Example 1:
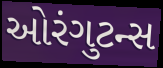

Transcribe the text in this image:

ઓરંગુટન્સ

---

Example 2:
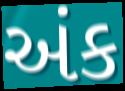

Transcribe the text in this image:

અંક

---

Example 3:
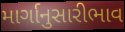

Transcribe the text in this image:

માર્ગાનુસારીભાવ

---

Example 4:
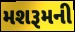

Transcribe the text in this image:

મશરૂમની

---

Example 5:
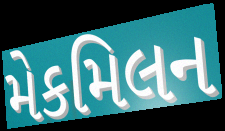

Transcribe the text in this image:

મેકમિલન